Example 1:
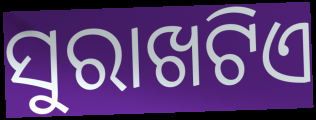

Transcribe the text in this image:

ସୁରାଖଟିଏ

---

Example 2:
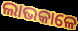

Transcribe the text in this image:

ଲାଭକାଳେ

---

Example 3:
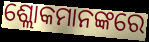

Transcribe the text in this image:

ଶ୍ଲୋକମାନଙ୍କରେ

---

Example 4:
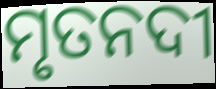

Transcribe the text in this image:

ମୃତନଦୀ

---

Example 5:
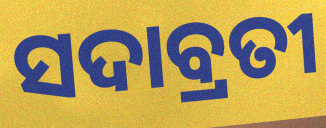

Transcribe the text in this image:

ସଦାବ୍ରତୀ